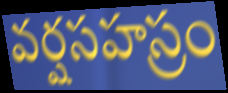
వర్షసహస్రం